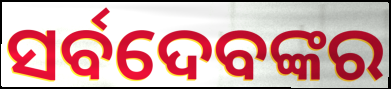
ସର୍ବଦେବଙ୍କର